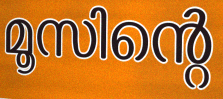
മൂസിന്റെ